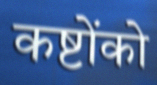
कष्टोंको